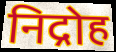
निद्रोह